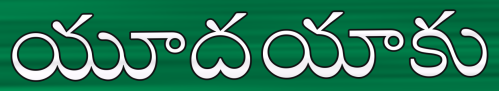
యూదయాకు